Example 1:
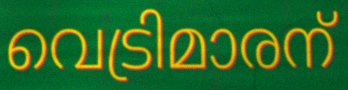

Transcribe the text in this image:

വെട്രിമാരന്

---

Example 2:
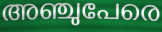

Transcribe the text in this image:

അഞ്ചുപേരെ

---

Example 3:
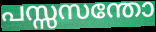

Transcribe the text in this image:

പസ്സസന്തോ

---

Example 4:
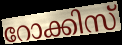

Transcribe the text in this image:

റോക്കിസ്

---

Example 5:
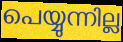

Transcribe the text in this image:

പെയ്യുന്നില്ല